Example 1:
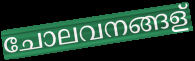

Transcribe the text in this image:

ചോലവനങ്ങള്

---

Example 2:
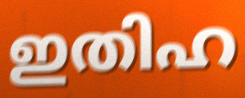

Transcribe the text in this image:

ഇതിഹ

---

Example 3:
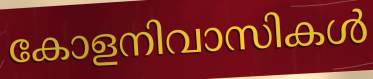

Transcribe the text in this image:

കോളനിവാസികൾ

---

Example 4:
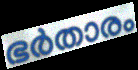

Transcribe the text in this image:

ഭർതാരം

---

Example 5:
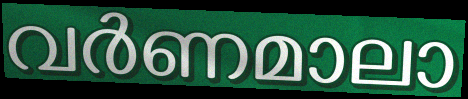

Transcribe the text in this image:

വർണമാലാ